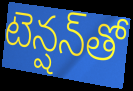
టెన్షన్‌తో